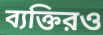
ব্যক্তিরও